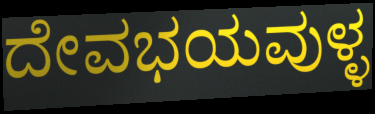
ದೇವಭಯವುಳ್ಳ